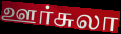
ஊர்சுலா